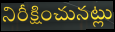
నిరీక్షించునట్లు